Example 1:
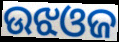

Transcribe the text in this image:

ଉଝଓଜ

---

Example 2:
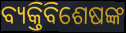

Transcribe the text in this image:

ବ୍ୟକ୍ତିବିଶେଷଙ୍କ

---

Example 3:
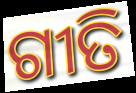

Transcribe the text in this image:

ଗୀତି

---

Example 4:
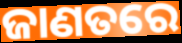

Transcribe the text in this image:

ଜାଣତରେ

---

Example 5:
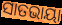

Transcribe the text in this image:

ସାତଭାୟା